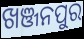
ଖଞ୍ଜନପୁର